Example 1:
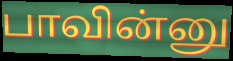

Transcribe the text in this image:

பாவின்னு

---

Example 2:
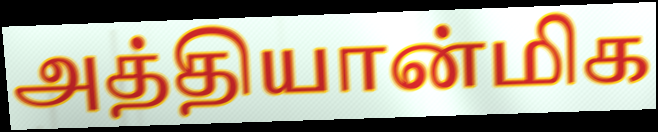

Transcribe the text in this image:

அத்தியான்மிக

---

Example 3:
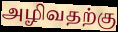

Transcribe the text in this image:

அழிவதற்கு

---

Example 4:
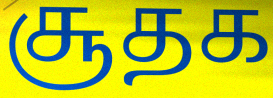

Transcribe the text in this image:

சூதக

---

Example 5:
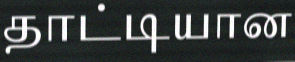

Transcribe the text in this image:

தாட்டியான